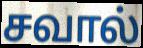
சவால்